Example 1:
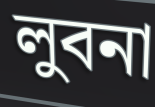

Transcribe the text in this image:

লুবনা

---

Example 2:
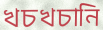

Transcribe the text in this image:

খচখচানি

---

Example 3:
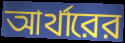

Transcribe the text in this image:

আর্থারের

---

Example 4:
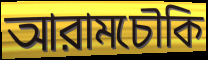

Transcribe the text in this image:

আরামচৌকি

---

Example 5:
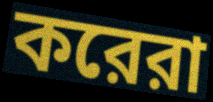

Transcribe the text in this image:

করেরা